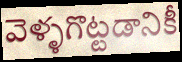
వెళ్ళగొట్టడానికీ